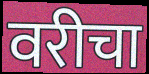
वरीचा